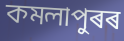
কমলাপুৰৰ